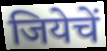
जियेचें